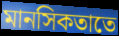
মানসিকতাতে